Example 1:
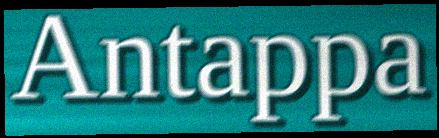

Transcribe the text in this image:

Antappa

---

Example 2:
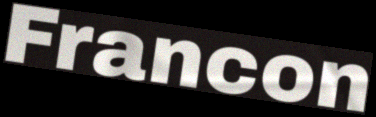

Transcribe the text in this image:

Francon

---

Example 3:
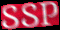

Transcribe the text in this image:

SSP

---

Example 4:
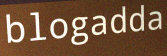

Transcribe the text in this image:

blogadda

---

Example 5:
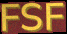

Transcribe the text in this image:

FSF